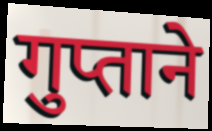
गुप्ताने